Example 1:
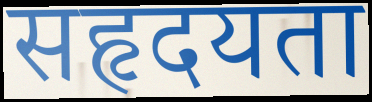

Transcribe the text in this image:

सहृदयता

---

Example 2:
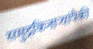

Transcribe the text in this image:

समुद्रकिनाऱ्यांपैकी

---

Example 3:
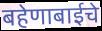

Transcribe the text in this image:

बहेणाबाईचे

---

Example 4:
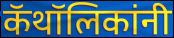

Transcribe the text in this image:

कॅथॉलिकांनी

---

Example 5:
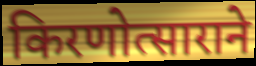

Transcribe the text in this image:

किरणोत्साराने